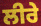
ਲੀਰੇ